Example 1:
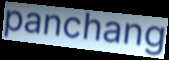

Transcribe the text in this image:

panchang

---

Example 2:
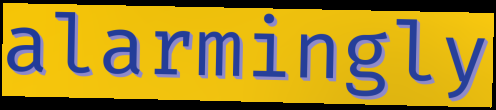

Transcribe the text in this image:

alarmingly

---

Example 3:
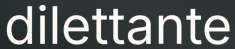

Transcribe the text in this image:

dilettante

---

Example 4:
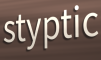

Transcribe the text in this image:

styptic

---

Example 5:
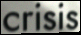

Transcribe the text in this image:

crisis